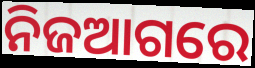
ନିଜଆଗରେ